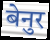
बेनुर